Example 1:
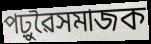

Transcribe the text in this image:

পঢ়ুৱৈসমাজক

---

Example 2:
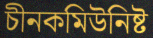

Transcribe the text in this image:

চীনকমিউনিষ্ট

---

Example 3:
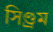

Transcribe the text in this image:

সিণ্ড্ৰম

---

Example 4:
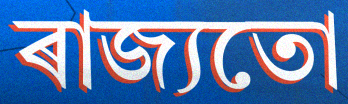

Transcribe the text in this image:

ৰাজ্যতো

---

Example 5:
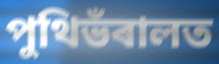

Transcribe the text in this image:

পুথিভঁৰালত